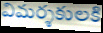
విమర్శకులకి